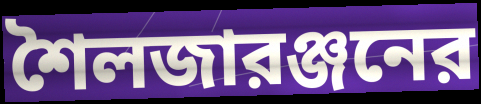
শৈলজারঞ্জনের